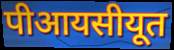
पीआयसीयूत